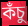
কঁচু